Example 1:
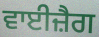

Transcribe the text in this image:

ਵਾਈਜ਼ੈਗ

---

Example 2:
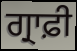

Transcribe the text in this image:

ਗ੍ਰਾਫ਼ੀ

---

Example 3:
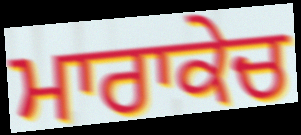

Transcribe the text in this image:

ਮਾਰਾਕੇਚ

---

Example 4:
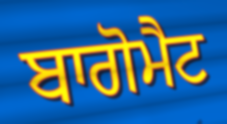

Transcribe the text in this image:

ਬਾਗੋਮੈਟ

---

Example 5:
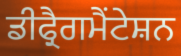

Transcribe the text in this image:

ਡੀਫ੍ਰੈਗਮੈਂਟੇਸ਼ਨ